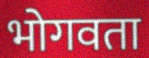
भोगवता